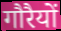
गौरैयों